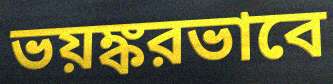
ভয়ঙ্করভাবে